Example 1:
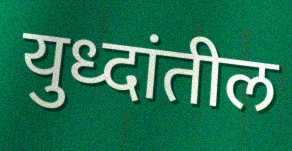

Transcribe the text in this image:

युध्दांतील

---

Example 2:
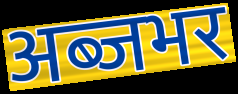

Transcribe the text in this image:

अब्जभर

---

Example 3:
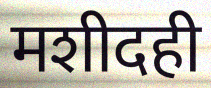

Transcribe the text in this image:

मशीदही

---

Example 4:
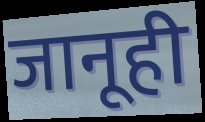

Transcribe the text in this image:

जानूही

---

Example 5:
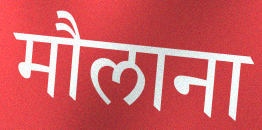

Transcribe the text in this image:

मौलाना